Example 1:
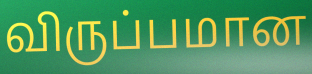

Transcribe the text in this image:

விருப்பமான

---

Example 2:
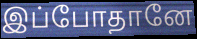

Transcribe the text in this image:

இப்போதானே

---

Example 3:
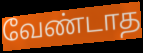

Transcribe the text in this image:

வேண்டாத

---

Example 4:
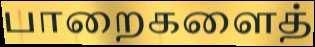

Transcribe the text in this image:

பாறைகளைத்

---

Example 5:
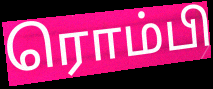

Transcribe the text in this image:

ரொம்பி